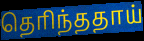
தெரிந்ததாய்